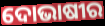
ଦୋଭାଷୀର